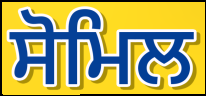
ਸੋਮਿਲ